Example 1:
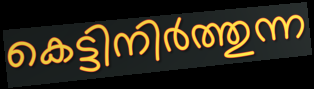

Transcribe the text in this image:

കെട്ടിനിർത്തുന്ന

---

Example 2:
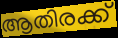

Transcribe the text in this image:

ആതിരക്ക്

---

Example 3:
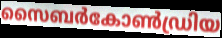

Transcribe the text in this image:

സൈബർകോൺഡ്രിയ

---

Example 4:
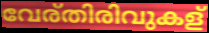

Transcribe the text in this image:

വേര്തിരിവുകള്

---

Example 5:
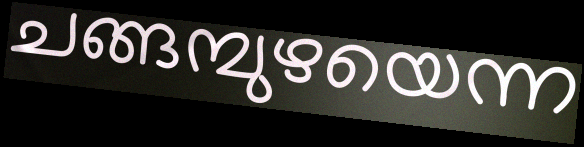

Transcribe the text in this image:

ചങ്ങമ്പുഴയെന്ന